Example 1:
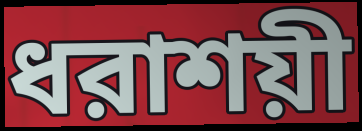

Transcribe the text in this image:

ধরাশয়ী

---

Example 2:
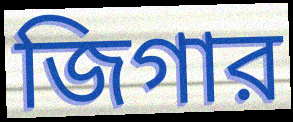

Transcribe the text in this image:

জিগার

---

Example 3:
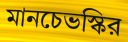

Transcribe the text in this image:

মানচেভস্কির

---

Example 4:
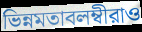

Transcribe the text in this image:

ভিন্নমতাবলম্বীরাও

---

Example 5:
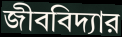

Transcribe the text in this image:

জীববিদ্যার